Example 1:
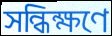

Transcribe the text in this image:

সন্ধিক্ষণে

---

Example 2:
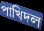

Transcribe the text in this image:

পাখিদল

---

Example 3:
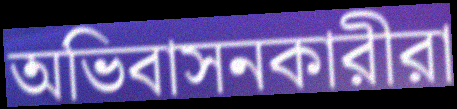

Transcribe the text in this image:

অভিবাসনকারীরা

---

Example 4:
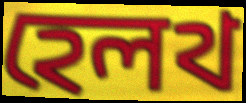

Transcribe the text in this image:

হেলথ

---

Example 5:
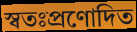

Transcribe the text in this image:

স্বতঃপ্রণোদিত